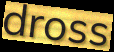
dross